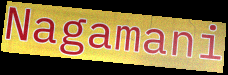
Nagamani